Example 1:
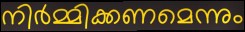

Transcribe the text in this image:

നിർമ്മിക്കണമെന്നും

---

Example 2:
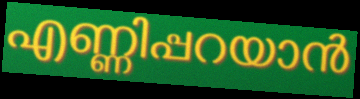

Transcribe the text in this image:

എണ്ണിപ്പറയാൻ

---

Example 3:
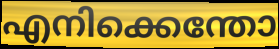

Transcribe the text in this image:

എനിക്കെന്തോ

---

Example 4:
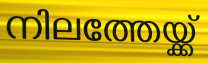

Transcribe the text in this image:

നിലത്തേയ്ക്ക്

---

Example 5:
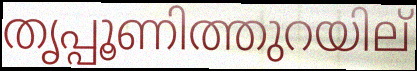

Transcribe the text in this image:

തൃപ്പൂണിത്തുറയില്